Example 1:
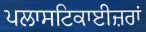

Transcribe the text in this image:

ਪਲਾਸਟਿਕਾਈਜ਼ਰਾਂ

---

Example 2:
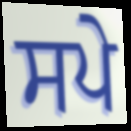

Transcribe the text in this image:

ਸਪੇ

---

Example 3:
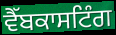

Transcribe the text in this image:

ਵੈੱਬਕਾਸਟਿੰਗ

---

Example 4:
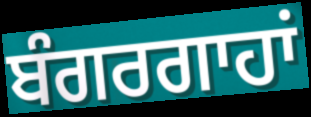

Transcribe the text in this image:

ਬੰਗਰਗਾਹਾਂ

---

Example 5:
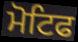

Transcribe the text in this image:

ਮੋਟਿਫ